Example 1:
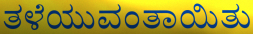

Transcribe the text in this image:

ತಳೆಯುವಂತಾಯಿತು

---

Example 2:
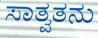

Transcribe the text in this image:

ಸಾತ್ವತನು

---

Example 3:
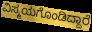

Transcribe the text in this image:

ವಿಸ್ಮಯಗೊಂಡಿದ್ದಾರೆ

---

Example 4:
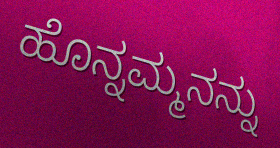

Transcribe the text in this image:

ಹೊನ್ನಮ್ಮನನ್ನು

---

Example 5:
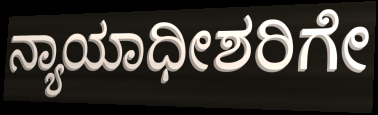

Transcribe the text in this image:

ನ್ಯಾಯಾಧೀಶರಿಗೇ